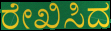
ರೇಖಿಸಿದ